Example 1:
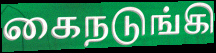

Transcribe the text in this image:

கைநடுங்கி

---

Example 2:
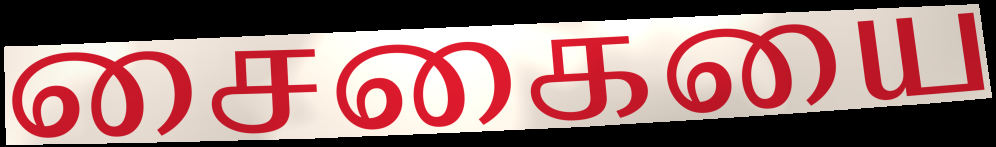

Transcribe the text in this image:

சைகையை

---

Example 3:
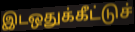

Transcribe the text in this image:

இடஒதுக்கீட்டுச்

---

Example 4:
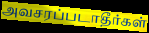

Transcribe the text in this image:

அவசரப்படாதீர்கள்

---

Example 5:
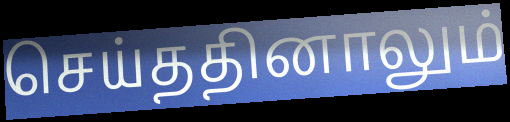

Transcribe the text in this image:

செய்ததினாலும்